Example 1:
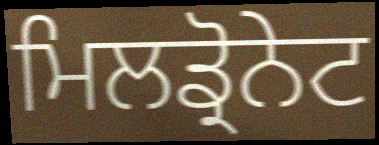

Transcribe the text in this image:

ਮਿਲਡ੍ਰੋਨੇਟ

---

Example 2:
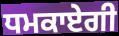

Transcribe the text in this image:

ਧਮਕਾਏਗੀ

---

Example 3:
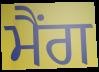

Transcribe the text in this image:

ਮੈਂਗ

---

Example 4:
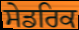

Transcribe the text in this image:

ਸੇਡਰਿਕ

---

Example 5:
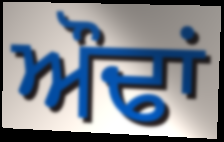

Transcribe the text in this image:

ਔਢਾਂ